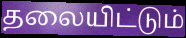
தலையிட்டும்